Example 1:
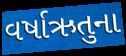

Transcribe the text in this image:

વર્ષાઋતુના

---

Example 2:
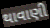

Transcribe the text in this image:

થાવાણી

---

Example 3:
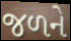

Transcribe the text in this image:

જળને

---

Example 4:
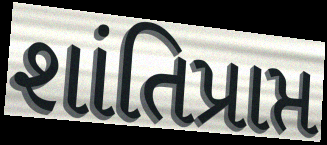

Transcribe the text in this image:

શાંતિપ્રાપ્ત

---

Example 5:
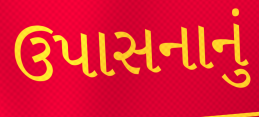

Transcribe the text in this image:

ઉપાસનાનું